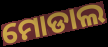
ମୋଡାଲ